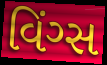
વિંગ્સ